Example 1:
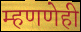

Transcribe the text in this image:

म्हणणेही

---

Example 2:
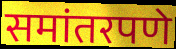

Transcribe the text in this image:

समांतरपणे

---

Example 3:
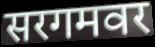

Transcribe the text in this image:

सरगमवर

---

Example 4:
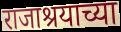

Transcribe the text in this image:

राजाश्रयाच्या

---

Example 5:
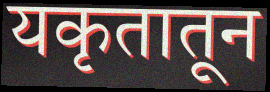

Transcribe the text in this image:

यकृतातून